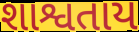
શાશ્વતાય